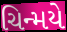
ચિન્મયે